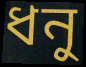
ধনু